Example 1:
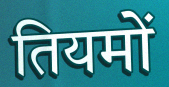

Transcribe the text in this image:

तियमों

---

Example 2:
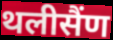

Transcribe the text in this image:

थलीसैंण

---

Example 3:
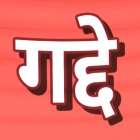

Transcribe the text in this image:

गद्दे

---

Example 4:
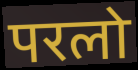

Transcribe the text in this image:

परलो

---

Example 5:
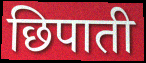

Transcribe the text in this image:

छिपाती